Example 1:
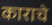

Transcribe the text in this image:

काराचे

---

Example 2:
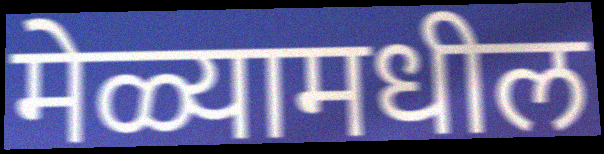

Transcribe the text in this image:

मेळ्यामधील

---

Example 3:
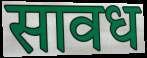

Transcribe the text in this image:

सावध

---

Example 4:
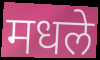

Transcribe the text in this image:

मधले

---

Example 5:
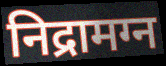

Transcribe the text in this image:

निद्रामग्न